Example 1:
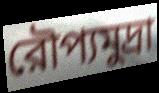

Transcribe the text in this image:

রৌপ্যমুদ্রা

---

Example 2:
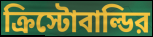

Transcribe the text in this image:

ক্রিস্টোবাল্ডির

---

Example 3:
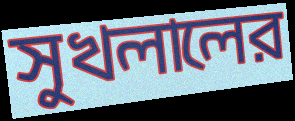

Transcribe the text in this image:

সুখলালের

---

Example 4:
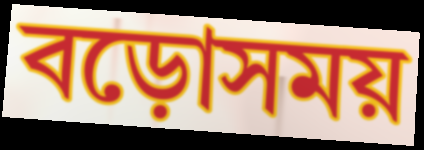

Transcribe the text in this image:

বড়োসময়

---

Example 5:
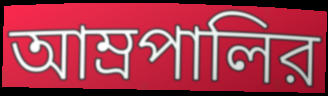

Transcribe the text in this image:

আম্রপালির